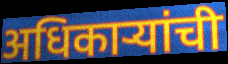
अधिकाऱ्यांची